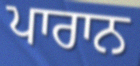
ਪਾਰਾਨ